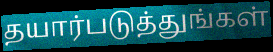
தயார்படுத்துங்கள்